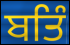
ਬਤਿੰ